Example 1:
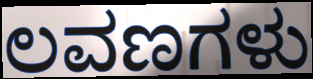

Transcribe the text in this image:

ಲವಣಗಳು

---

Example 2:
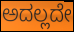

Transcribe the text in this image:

ಅದಲ್ಲದೇ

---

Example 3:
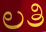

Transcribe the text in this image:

ಲತಿ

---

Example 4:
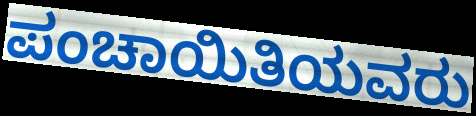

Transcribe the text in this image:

ಪಂಚಾಯಿತಿಯವರು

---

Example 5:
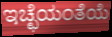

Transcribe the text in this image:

ಇಚ್ಛೆಯಂತೆಯೆ